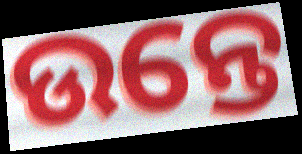
ଉନ୍ତେ